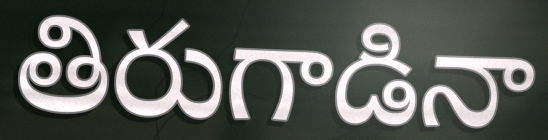
తిరుగాడినా